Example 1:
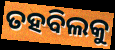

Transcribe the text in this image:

ତହବିଲକୁ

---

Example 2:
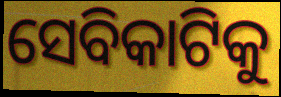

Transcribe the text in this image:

ସେବିକାଟିକୁ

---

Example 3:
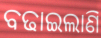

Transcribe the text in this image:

ବଢାଇଲାଣି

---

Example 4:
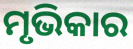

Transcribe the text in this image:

ମୃଭିକାର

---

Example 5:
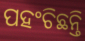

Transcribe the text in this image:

ପହଂଚିଛନ୍ତି